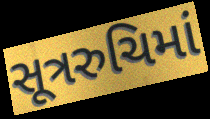
સૂત્રરુચિમાં